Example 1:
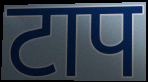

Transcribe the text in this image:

टाप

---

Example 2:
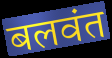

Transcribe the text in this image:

बलवंत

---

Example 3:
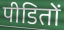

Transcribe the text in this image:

पीडितों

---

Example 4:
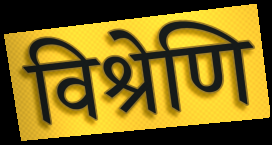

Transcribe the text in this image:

विश्रेणि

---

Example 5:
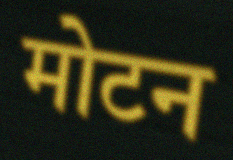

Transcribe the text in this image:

मोटन